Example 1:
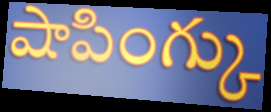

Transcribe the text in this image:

షాపింగ్కు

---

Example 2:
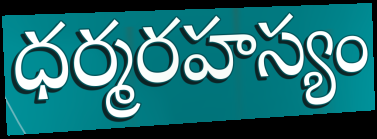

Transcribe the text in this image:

ధర్మరహస్యం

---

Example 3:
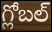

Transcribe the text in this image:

గ్లోబల్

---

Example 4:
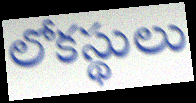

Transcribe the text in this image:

లోకస్థులు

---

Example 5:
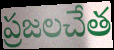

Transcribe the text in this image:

ప్రజలచేత